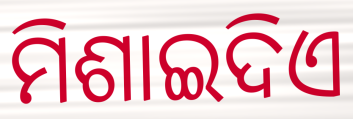
ମିଶାଇଦିଏ